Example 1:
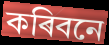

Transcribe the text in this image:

কৰিবনে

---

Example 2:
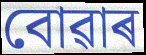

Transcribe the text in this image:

বোৱাৰ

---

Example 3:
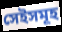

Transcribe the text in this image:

সেইসমূহ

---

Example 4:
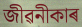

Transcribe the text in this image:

জীৱনীকাৰ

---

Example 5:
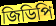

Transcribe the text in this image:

জিডিপি